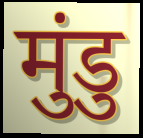
मुंडु